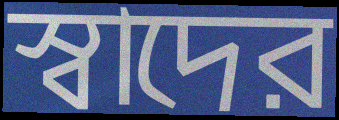
স্বাদের